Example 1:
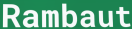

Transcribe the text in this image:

Rambaut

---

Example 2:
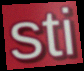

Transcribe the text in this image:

sti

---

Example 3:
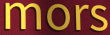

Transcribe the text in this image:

mors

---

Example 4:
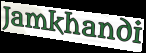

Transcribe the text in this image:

Jamkhandi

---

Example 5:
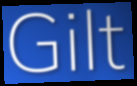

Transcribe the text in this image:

Gilt